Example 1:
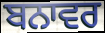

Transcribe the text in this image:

ਬਨਾਵਰ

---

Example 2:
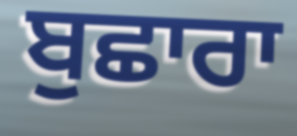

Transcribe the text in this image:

ਬੁਛਾਰਾ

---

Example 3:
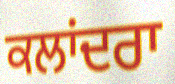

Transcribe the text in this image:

ਕਲਾਂਦਰਾ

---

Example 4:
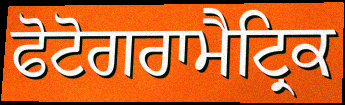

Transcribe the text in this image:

ਫੋਟੋਗਰਾਮੈਟ੍ਰਿਕ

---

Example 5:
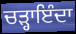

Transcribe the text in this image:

ਚੜ੍ਹਾਇੰਦਾ